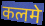
कलमे